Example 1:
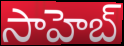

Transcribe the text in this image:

సాహెబ్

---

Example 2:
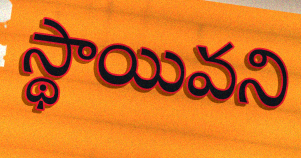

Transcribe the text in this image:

స్థాయివని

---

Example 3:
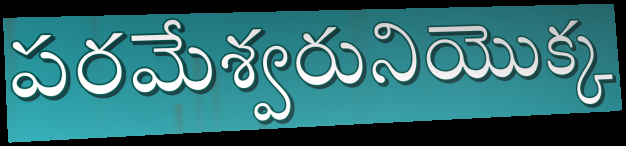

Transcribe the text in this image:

పరమేశ్వరునియొక్క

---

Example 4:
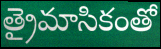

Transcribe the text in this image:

త్రైమాసికంతో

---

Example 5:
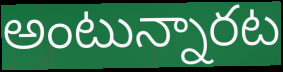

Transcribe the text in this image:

అంటున్నారట